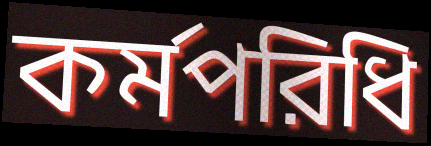
কর্মপরিধি